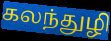
கலந்துழி